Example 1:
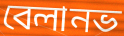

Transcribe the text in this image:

বেলানভ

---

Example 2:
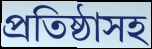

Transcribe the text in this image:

প্রতিষ্ঠাসহ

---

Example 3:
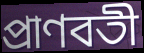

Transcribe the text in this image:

প্রাণবতী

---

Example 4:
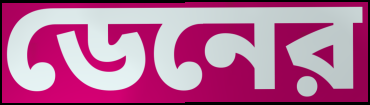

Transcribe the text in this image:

ডেনের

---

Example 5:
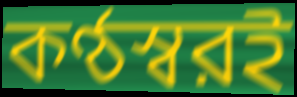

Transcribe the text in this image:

কণ্ঠস্বরই